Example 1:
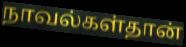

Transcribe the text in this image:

நாவல்கள்தான்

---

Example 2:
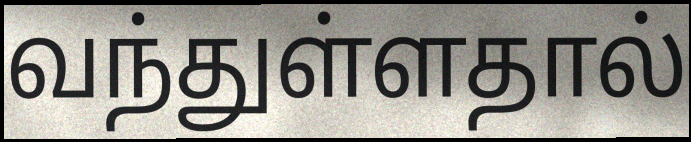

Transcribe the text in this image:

வந்துள்ளதால்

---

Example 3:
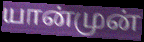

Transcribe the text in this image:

யான்முன்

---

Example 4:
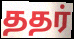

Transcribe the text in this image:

ததர்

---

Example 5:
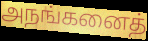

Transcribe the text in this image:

அநங்கனைத்